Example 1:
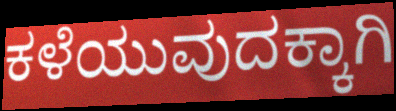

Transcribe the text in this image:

ಕಳೆಯುವುದಕ್ಕಾಗಿ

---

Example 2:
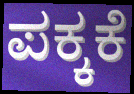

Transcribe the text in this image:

ಪಕ್ಕಕೆ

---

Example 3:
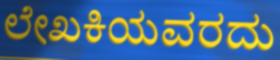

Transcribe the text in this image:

ಲೇಖಕಿಯವರದು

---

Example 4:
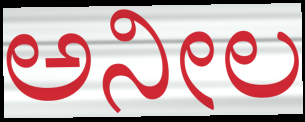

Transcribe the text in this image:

ಅನೀಲ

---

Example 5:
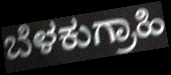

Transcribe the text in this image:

ಬೆಳಕುಗ್ರಾಹಿ